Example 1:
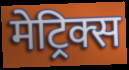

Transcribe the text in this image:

मेट्रिक्‍स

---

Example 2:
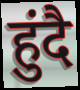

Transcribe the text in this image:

हुंदै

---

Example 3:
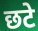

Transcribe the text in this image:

छटे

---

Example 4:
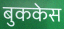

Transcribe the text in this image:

बुककेस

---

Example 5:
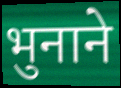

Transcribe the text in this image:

भुनाने